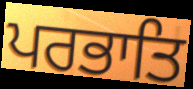
ਪਰਭਾਤਿ